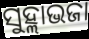
ସୁହ୍ଲାଭଜା